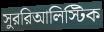
সুররিআলিস্টিক